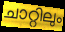
ചാറ്റിലും